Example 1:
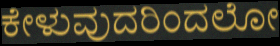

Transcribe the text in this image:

ಕೇಳುವುದರಿಂದಲೋ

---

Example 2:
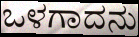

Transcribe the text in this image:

ಒಳಗಾದನು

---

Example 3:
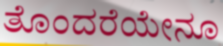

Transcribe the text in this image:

ತೊಂದರೆಯೇನೂ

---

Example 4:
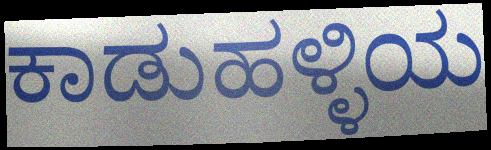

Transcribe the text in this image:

ಕಾಡುಹಳ್ಳಿಯ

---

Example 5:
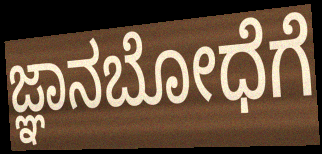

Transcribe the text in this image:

ಜ್ಞಾನಬೋಧೆಗೆ